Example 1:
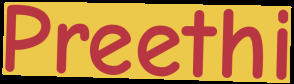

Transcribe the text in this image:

Preethi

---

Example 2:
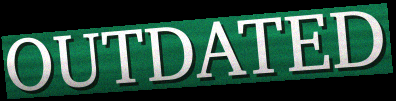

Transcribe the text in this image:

OUTDATED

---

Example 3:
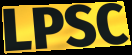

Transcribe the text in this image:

LPSC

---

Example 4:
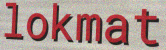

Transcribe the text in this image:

lokmat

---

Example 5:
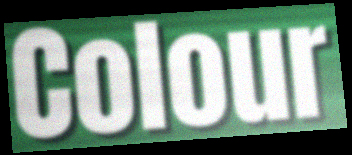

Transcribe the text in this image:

Colour